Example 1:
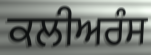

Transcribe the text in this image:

ਕਲੀਅਰੰਸ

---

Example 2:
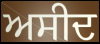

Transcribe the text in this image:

ਅਸੀਦ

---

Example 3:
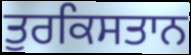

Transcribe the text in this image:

ਤੁਰਕਿਸਤਾਨ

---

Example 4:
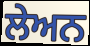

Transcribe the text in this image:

ਲੇਅਨ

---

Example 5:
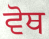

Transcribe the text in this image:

ਵੋਥ